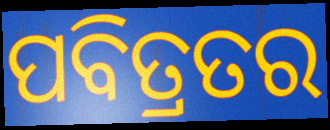
ପବିତ୍ରତର